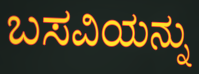
ಬಸವಿಯನ್ನು